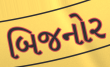
બિજનોર